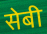
सेबी